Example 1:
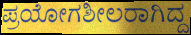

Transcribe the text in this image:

ಪ್ರಯೋಗಶೀಲರಾಗಿದ್ದ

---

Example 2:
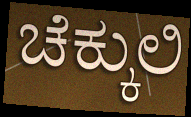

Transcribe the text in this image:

ಚೆಕ್ಕುಲಿ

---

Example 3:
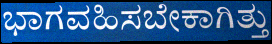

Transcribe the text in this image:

ಭಾಗವಹಿಸಬೇಕಾಗಿತ್ತು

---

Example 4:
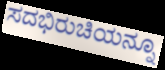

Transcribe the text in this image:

ಸದಭಿರುಚಿಯನ್ನೂ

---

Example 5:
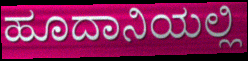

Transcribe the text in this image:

ಹೂದಾನಿಯಲ್ಲಿ